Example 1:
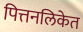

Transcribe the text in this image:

पित्तनलिकेत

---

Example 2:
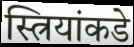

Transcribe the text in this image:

स्त्रियांकडे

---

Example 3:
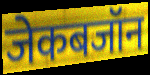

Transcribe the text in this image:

जेकबजॉन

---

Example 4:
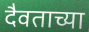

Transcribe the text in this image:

दैवताच्या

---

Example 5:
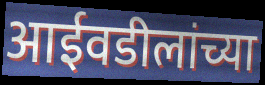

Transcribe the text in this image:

आईवडीलांच्या